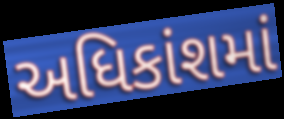
અધિકાંશમાં